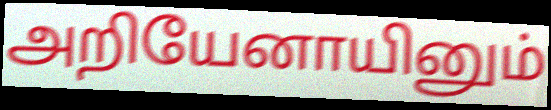
அறியேனாயினும்